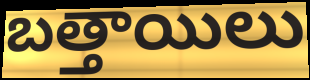
బత్తాయిలు